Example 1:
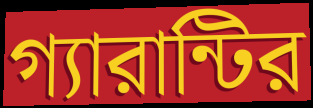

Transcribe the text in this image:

গ্যারান্টির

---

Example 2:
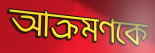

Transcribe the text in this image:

আক্রমণকে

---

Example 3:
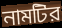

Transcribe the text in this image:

নামটির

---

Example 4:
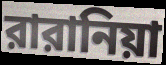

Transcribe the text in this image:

রারানিয়া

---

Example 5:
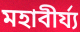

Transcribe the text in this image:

মহাবীর্য্য